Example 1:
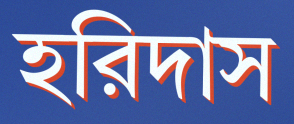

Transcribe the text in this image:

হরিদাস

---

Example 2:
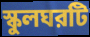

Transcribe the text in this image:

স্কুলঘরটি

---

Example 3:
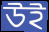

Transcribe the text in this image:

উই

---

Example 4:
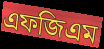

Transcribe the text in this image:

এফজিএম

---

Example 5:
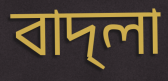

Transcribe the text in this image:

বাদ্‌লা